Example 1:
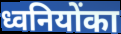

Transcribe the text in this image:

ध्वनियोंका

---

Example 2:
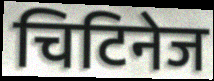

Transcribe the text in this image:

चिटिनेज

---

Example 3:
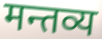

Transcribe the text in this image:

मन्तव्य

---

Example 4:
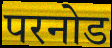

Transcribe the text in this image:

परनोड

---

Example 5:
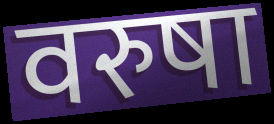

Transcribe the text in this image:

वरुषा